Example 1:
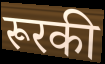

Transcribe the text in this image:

रूरकी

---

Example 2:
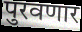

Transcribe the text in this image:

पुरवणार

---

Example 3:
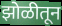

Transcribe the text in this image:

झोळीतून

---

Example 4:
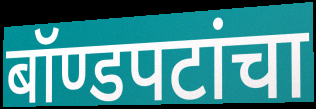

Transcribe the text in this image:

बॉण्डपटांचा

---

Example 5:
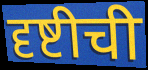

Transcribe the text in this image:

दृष्टीची